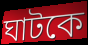
ঘাটকে